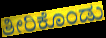
ತೀರಿಕೊಂಡು